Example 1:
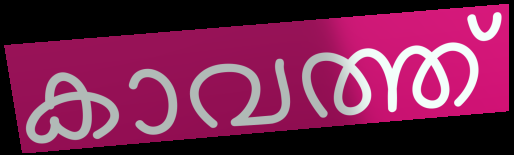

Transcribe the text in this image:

കാവത്ത്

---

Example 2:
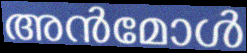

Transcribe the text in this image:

അൻമോൾ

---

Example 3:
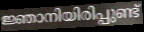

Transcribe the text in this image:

ജ്ഞാനിയിരിപ്പുണ്ട്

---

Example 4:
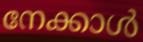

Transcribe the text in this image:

നേക്കാൾ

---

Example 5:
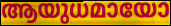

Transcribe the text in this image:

ആയുധമായോ